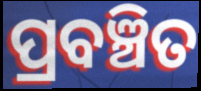
ପ୍ରବଞ୍ଚିତ